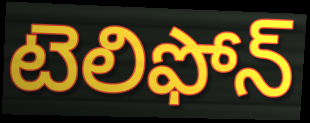
టెలిఫోన్